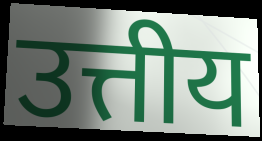
उत्तीय